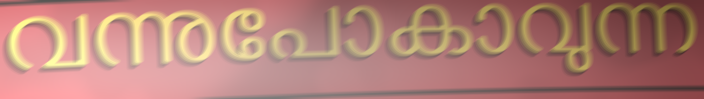
വന്നുപോകാവുന്ന